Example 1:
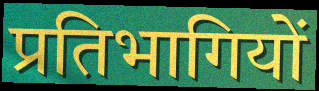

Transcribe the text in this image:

प्रतिभागियों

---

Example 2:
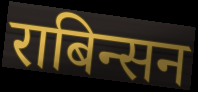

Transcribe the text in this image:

राबिन्सन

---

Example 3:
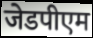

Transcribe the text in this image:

जेडपीएम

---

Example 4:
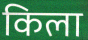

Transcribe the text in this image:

किला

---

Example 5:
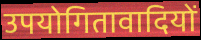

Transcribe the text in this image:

उपयोगितावादियों